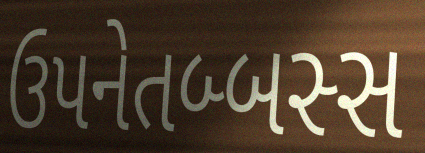
ઉપનેતબ્બસ્સ